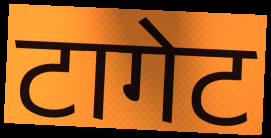
टागेट